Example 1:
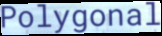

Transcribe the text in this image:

Polygonal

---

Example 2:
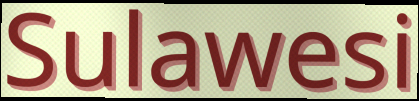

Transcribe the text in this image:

Sulawesi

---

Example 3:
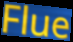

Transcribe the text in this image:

Flue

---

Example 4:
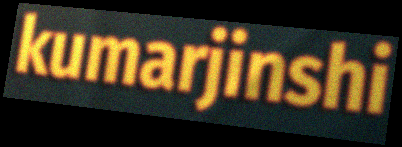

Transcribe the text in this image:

kumarjinshi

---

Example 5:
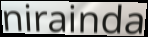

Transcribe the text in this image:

nirainda